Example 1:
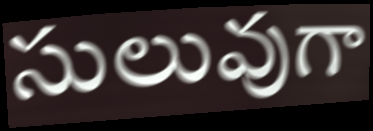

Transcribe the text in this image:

సులువుగా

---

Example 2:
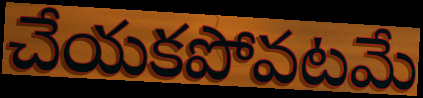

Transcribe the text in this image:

చేయకపోవటమే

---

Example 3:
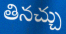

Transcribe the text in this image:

తినచ్చు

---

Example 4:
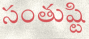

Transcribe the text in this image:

సంతుష్టి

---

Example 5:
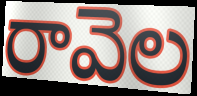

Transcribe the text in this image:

రావెల